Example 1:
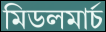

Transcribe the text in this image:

মিডলমাৰ্চ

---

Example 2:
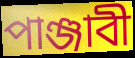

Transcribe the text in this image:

পাঞ্জাবী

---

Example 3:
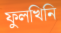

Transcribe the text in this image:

ফুলখিনি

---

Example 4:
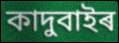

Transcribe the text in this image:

কাদুবাইৰ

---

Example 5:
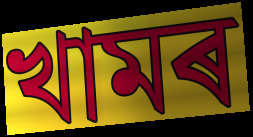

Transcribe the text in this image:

খামৰ